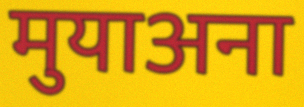
मुयाअना